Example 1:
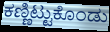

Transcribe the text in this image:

ಕಣ್ಣಿಟ್ಟುಕೊಂಡು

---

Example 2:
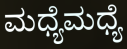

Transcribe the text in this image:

ಮಧ್ಯೆಮಧ್ಯೆ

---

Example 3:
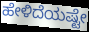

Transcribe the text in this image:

ಹೇಳಿದೆಯಷ್ಟೇ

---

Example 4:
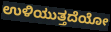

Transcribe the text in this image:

ಉಳಿಯುತ್ತದೆಯೋ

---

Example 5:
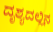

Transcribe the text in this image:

ದೃಶ್ಯದಲ್ಲಿನ